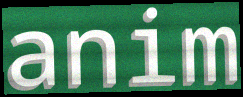
anim